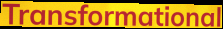
Transformational